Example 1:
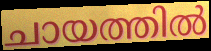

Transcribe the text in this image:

ചായത്തിൽ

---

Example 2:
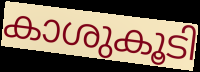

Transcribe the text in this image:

കാശുകൂടി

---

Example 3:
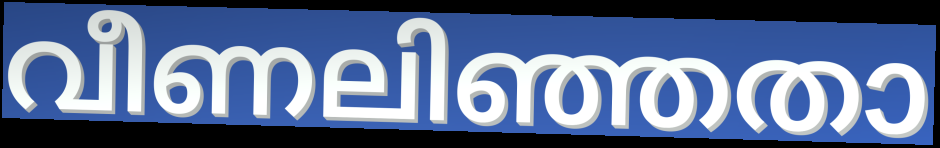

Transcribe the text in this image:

വീണലിഞ്ഞതാ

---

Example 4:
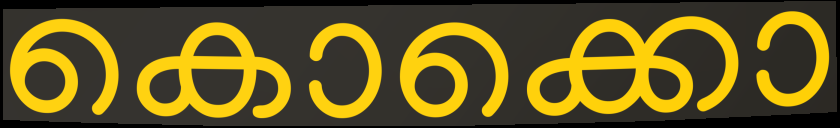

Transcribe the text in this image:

കൊക്കൊ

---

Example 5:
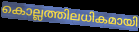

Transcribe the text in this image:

കൊല്ലത്തിലധികമായി